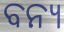
ବନ୍ୟ